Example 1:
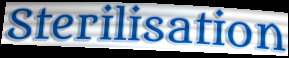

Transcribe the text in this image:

Sterilisation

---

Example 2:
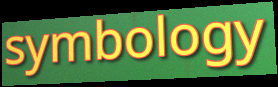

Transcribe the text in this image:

symbology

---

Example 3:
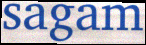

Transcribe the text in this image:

sagam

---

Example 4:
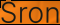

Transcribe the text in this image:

Sron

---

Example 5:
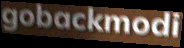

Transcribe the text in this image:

gobackmodi